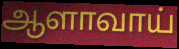
ஆளாவாய்